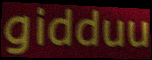
gidduu